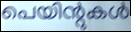
പെയിന്റുകൾ